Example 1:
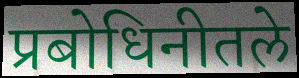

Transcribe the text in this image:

प्रबोधिनीतले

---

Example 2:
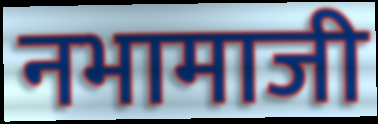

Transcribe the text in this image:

नभामाजी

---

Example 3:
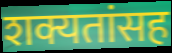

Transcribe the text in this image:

शक्यतांसह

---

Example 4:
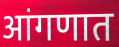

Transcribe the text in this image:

आंगणात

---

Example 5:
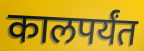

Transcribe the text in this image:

कालपर्यंत